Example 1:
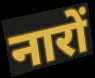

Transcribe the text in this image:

नारों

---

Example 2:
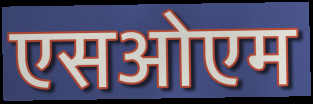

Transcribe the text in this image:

एसओएम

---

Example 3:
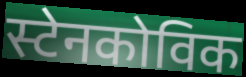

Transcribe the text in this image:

स्टेनकोविक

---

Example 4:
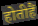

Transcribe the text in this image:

होतीहैं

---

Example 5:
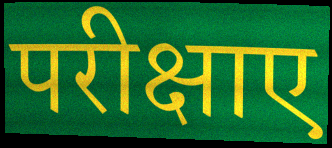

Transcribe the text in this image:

परीक्षाए